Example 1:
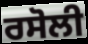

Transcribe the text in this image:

ਰਸੋਲੀ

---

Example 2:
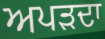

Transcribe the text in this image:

ਅਪੜਦਾ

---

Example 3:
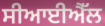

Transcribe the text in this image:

ਸੀਆਈਐੱਲ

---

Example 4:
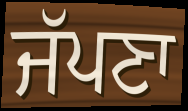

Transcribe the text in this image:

ਜੱਪਣਾ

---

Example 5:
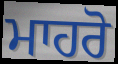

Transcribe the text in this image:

ਮਾਹਰੋ